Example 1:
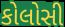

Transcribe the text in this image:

કોલોસી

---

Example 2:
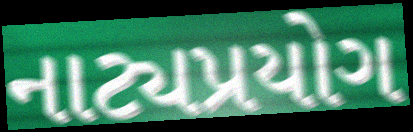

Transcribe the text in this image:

નાટ્યપ્રયોગ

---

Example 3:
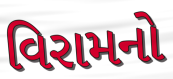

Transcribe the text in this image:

વિરામનો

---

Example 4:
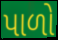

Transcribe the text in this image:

પાળો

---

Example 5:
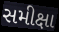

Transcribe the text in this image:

સમીક્ષા